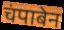
चंपाबेन